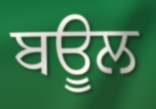
ਬਊਲ